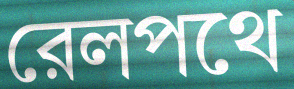
রেলপথে